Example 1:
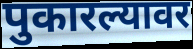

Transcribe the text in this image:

पुकारल्यावर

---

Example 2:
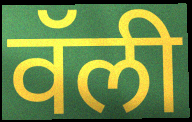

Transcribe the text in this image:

वॅली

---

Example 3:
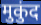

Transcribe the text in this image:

मुकुंद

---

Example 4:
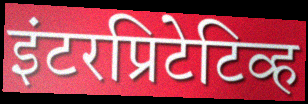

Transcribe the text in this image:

इंटरप्रिटेटिव्ह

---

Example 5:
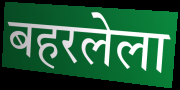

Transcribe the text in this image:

बहरलेला